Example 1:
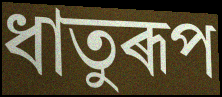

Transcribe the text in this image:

ধাতুৰূপ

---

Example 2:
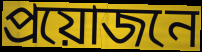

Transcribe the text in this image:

প্ৰয়োজনে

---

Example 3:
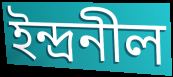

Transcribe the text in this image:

ইন্দ্ৰনীল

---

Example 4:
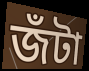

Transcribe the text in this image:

জঁটা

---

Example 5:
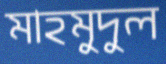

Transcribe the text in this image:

মাহমুদুল